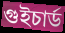
গুইচার্ড